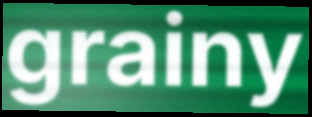
grainy